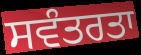
ਸਵੰਤਰਤਾ